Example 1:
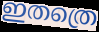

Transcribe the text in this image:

ഇതത്രെ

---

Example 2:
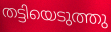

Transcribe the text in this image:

തട്ടിയെടുത്തു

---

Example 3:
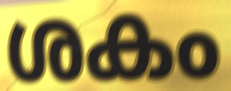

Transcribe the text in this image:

ശകം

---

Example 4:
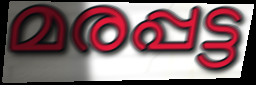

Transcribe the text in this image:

മരപ്പട്ട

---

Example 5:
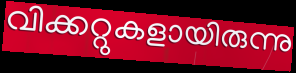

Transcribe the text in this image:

വിക്കറ്റുകളായിരുന്നു